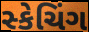
સ્કેચિંગ